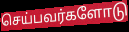
செய்பவர்களோடு